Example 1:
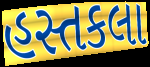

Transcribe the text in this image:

હસ્તકલા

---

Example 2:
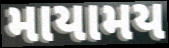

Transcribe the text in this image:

માયામય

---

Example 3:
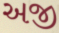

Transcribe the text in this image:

અજી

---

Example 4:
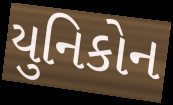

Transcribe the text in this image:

યુનિકોન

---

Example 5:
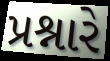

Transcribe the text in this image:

પ્રશ્નારે